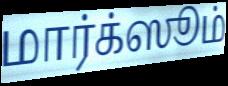
மார்க்ஸூம்